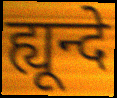
ह्यून्दे